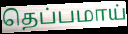
தெப்பமாய்